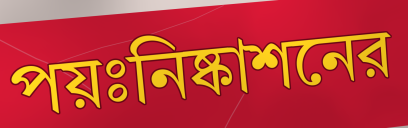
পয়ঃনিষ্কাশনের